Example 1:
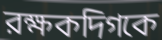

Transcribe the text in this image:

রক্ষকদিগকে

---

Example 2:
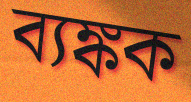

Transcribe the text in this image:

ব্যঙ্কক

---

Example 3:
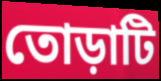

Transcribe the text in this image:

তোড়াটি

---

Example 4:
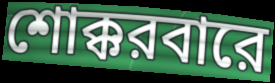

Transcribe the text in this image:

শোক্করবারে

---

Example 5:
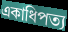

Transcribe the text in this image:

একাধিপত্য